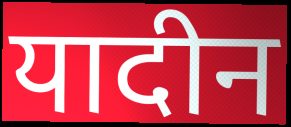
यादीन